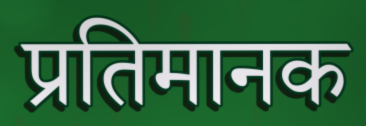
प्रतिमानक